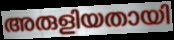
അരുളിയതായി